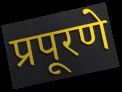
प्रपूरणे